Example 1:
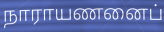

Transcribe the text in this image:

நாராயணனைப்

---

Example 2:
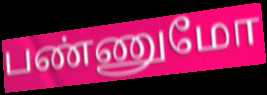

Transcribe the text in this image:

பண்ணுமோ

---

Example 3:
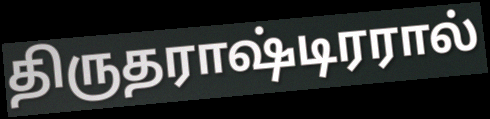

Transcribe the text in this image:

திருதராஷ்டிரரால்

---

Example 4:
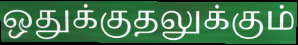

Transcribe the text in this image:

ஒதுக்குதலுக்கும்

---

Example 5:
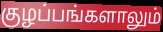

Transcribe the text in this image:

குழப்பங்களாலும்